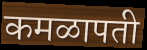
कमळापती